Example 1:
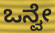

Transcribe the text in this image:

ಒನ್ವೇ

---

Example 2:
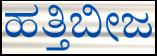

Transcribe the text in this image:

ಹತ್ತಿಬೀಜ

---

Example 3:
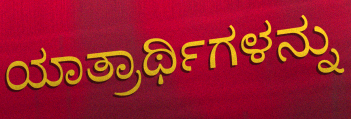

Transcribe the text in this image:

ಯಾತ್ರಾರ್ಥಿಗಳನ್ನು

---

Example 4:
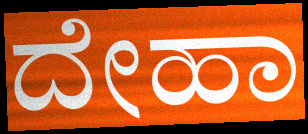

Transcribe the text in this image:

ದೇಹಾ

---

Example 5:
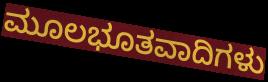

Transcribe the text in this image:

ಮೂಲಭೂತವಾದಿಗಳು